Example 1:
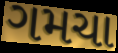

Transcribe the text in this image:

ગમચા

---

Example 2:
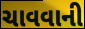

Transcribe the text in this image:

ચાવવાની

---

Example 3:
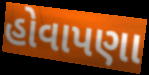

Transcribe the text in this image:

હોવાપણા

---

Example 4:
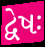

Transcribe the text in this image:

દ્વેષઃ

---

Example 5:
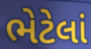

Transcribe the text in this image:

ભેટેલાં